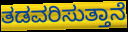
ತಡವರಿಸುತ್ತಾನೆ